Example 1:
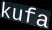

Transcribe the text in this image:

kufa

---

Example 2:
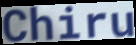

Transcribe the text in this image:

Chiru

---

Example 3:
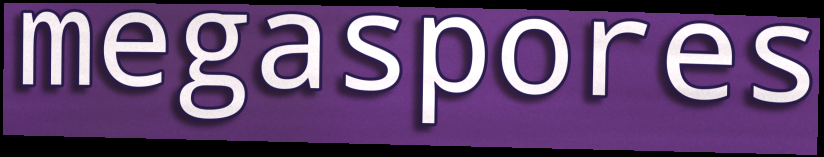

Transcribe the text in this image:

megaspores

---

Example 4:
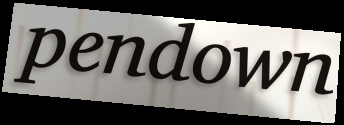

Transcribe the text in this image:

pendown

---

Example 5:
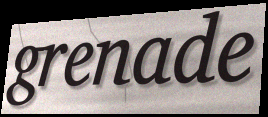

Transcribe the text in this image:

grenade